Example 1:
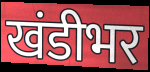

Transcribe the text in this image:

खंडीभर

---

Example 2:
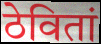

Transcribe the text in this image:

ठेवितां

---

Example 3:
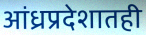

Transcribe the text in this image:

आंध्रप्रदेशातही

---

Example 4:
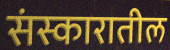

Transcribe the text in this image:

संस्कारातील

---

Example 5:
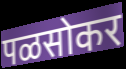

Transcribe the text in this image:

पळसोकर